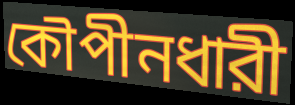
কৌপীনধারী